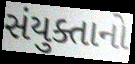
સંયુક્તાનો